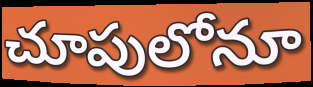
చూపులోనూ